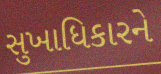
સુખાધિકારને